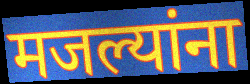
मजल्यांना